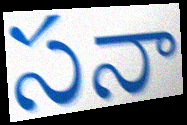
సనా